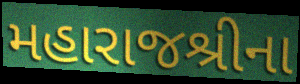
મહારાજશ્રીના